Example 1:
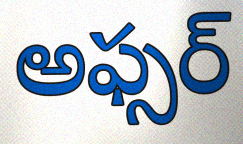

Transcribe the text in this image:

అఫ్సర్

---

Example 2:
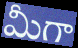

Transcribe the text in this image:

మీగా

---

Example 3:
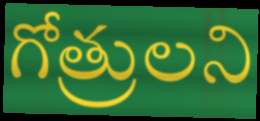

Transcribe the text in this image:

గోత్రులని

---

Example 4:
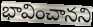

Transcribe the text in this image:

భావించానని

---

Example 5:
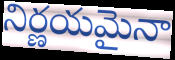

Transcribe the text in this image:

నిర్ణయమైనా